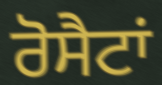
ਰੋਸੈਟਾਂ